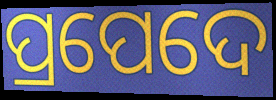
ପ୍ରପେଦେ